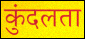
कुंदलता